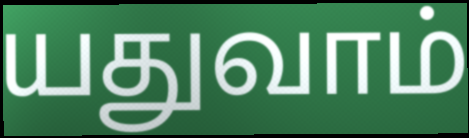
யதுவாம்